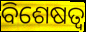
ବିଶେଷତ୍ଵ